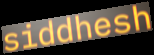
siddhesh